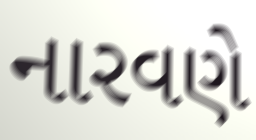
નારવણે